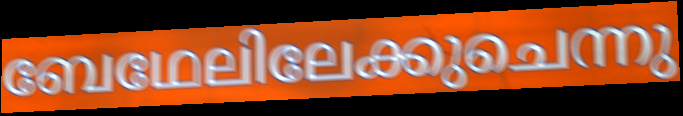
ബേഥേലിലേക്കുചെന്നു